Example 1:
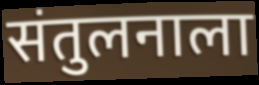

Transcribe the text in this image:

संतुलनाला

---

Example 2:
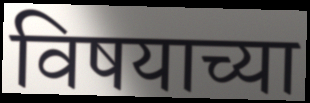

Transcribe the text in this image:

विषयाच्या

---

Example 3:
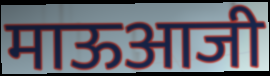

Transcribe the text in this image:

माऊआजी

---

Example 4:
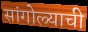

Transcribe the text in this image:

सांगोल्याची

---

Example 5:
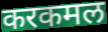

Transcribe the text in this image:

करकमल